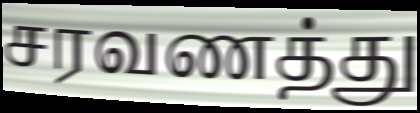
சரவணத்து